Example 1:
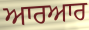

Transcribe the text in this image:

ਆਰਆਰ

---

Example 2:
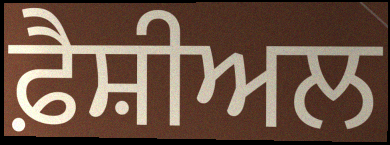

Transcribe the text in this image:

ਫ਼ੈਸ਼ੀਅਲ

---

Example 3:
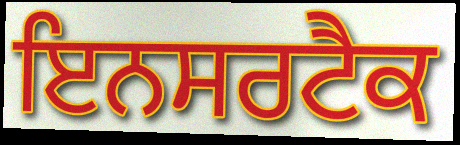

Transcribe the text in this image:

ਇਨਸਰਟੈਕ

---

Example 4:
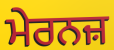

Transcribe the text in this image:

ਮੇਰਨਜ਼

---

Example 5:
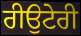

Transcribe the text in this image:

ਰੀਉਟੇਰੀ